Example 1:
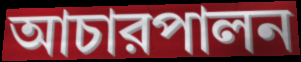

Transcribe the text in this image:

আচারপালন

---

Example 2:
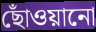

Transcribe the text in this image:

ছোঁওয়ানো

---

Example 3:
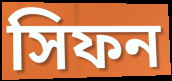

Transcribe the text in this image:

সিফন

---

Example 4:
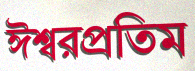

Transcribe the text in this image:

ঈশ্বরপ্রতিম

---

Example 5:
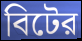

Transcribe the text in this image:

বিটের